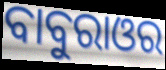
ବାବୁରାଓର